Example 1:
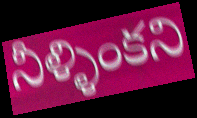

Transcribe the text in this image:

నీళ్ళింకని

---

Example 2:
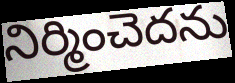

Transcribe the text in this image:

నిర్మించెదను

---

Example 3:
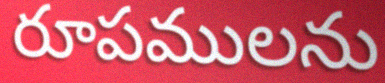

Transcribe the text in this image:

రూపములను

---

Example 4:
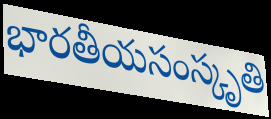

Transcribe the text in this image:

భారతీయసంస్కృతి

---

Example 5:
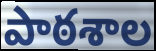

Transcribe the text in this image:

పాఠశాల